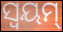
ସ୍ୱୟମ୍